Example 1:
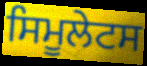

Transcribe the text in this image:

ਸਿਮੂਲੇਟਸ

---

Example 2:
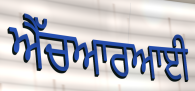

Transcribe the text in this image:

ਐੱਚਆਰਆਈ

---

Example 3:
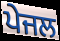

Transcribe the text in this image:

ਪੇਜਲ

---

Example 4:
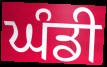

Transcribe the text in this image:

ਘੰਡੀ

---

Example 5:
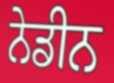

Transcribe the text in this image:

ਨੇਡੀਨ